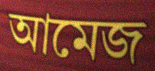
আমেজ